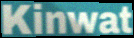
Kinwat